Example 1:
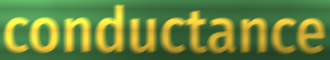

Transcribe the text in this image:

conductance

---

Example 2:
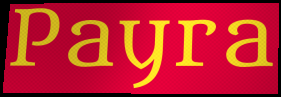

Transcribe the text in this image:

Payra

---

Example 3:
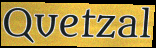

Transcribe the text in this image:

Quetzal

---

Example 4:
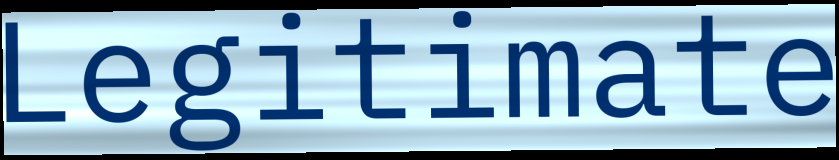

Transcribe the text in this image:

Legitimate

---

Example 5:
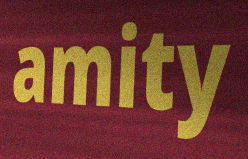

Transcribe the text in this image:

amity